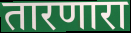
तारणारा